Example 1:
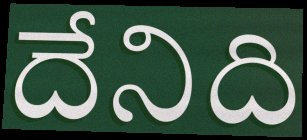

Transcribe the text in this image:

దేనిది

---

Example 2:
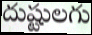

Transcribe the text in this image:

దుష్టులగు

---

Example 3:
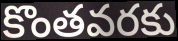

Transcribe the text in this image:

కొంతవరకు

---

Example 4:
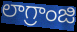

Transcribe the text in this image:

లాగ్రాంజి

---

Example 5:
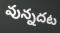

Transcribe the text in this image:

వున్నదట